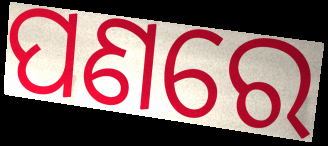
ପଣରେ